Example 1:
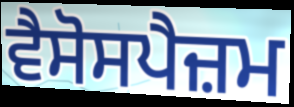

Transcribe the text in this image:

ਵੈਸੋਸਪੈਜ਼ਮ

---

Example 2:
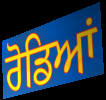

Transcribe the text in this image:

ਰੋਡਿਆਂ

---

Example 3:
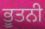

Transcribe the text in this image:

ਭੂਤਨੀ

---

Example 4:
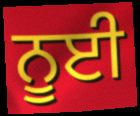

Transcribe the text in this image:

ਨੂਈ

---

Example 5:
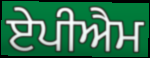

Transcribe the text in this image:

ਏਪੀਐਮ